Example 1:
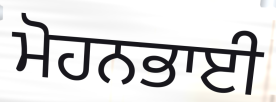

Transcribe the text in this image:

ਮੋਹਨਭਾਈ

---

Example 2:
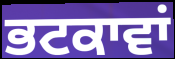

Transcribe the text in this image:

ਭਟਕਾਵਾਂ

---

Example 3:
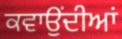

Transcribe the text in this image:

ਕਵਾਉਂਦੀਆਂ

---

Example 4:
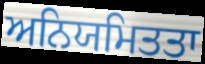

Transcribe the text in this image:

ਅਨਿਯਮਿਤਤਾ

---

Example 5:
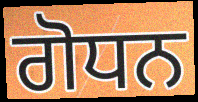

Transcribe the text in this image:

ਗੋਧਨ